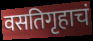
वसतिगृहाचं